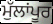
ਮੁੱਲਾਂਪੂਰ